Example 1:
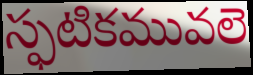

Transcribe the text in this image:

స్ఫటికమువలె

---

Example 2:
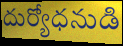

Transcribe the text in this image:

దుర్యోధనుడి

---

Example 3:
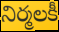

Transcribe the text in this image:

నిర్మలకీ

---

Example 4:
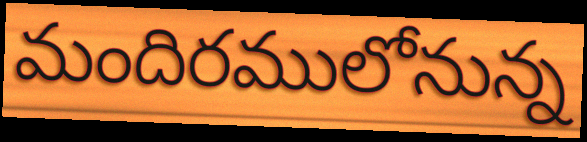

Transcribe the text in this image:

మందిరములోనున్న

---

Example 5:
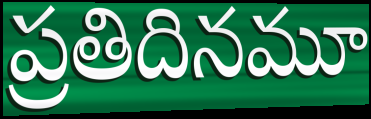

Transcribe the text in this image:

ప్రతిదినమూ